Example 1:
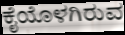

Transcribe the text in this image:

ಕೈಯೊಳಗಿರುವ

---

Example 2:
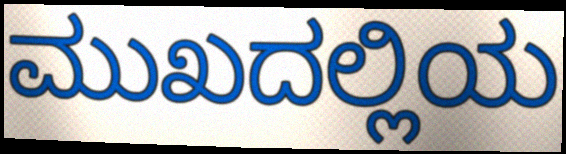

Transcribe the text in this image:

ಮುಖದಲ್ಲಿಯ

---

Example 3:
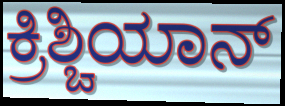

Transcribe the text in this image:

ಕ್ರಿಶ್ಚಿಯಾನ್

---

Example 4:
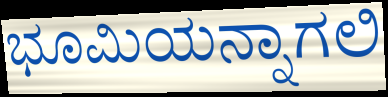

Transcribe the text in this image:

ಭೂಮಿಯನ್ನಾಗಲಿ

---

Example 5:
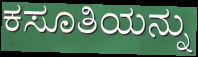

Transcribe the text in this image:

ಕಸೂತಿಯನ್ನು